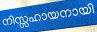
നിസ്സഹായനായി